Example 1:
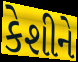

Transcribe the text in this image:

કેશીને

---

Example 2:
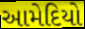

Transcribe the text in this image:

આમેદિયો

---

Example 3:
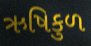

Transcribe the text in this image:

ઋષિકુળ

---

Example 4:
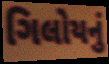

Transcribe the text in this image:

ગિલોયનું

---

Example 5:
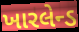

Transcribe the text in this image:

ખારલેન્ડ